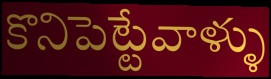
కొనిపెట్టేవాళ్ళు